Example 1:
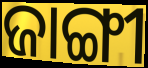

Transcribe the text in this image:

ଜାଙ୍ଗୀ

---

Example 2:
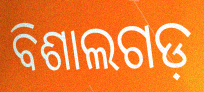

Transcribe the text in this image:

ବିଶାଲଗଡ଼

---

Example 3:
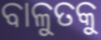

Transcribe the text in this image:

ବାଳୁତକୁ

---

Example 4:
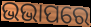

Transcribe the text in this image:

ଭଭାପରେ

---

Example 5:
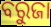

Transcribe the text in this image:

ବରୁଜା